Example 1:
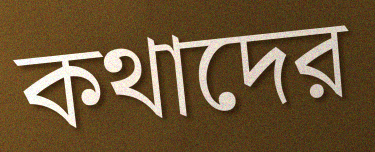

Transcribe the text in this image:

কথাদের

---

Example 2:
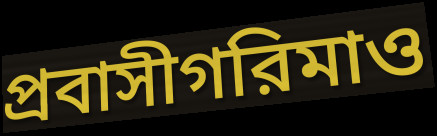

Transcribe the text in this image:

প্রবাসীগরিমাও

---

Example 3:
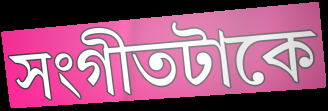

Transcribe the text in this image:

সংগীতটাকে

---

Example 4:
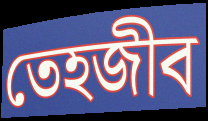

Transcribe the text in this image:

তেহজীব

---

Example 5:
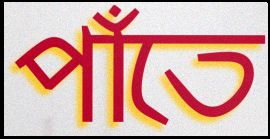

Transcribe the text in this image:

পাঁতে